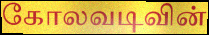
கோலவடிவின்